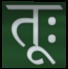
तूः